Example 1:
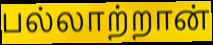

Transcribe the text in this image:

பல்லாற்றான்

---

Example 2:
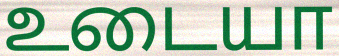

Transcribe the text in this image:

உடையா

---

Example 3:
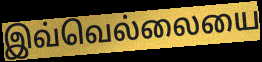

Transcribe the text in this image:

இவ்வெல்லையை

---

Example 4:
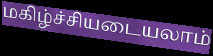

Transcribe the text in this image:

மகிழ்ச்சியடையலாம்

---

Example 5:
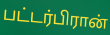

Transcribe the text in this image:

பட்டர்பிரான்